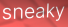
sneaky